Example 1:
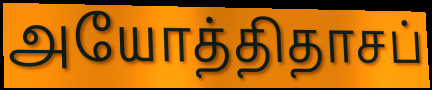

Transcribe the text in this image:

அயோத்திதாசப்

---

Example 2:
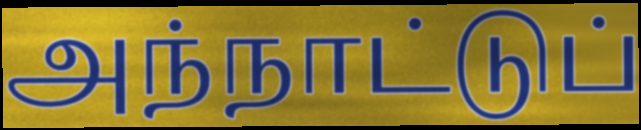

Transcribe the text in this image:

அந்நாட்டுப்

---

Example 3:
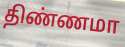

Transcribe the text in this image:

திண்ணமா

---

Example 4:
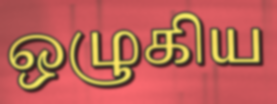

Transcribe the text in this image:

ஒழுகிய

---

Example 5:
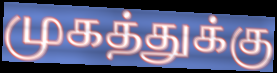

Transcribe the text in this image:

முகத்துக்கு